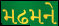
મઢમને